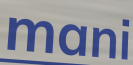
mani